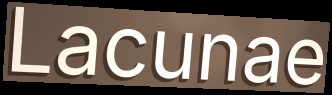
Lacunae